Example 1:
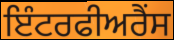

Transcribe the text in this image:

ਇੰਟਰਫੀਅਰੈਂਸ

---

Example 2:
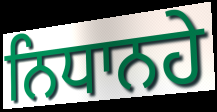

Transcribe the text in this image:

ਨਿਧਾਨਹੇ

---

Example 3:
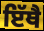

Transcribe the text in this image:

ਇੱਥੈ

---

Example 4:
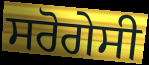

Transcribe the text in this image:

ਸਰੋਗੇਸੀ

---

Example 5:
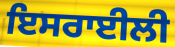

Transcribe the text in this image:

ਇਸਰਾਈਲੀ